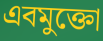
এবমুক্তো